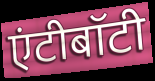
एंटीबॉटी